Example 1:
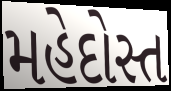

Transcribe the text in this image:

મહેદોસ્ત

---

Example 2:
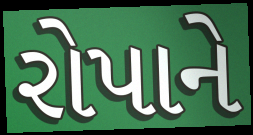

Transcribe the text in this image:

રોપાને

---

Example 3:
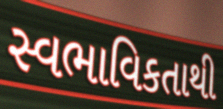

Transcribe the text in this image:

સ્વભાવિકતાથી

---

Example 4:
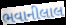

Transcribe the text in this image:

ભવાનીલાલ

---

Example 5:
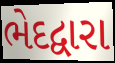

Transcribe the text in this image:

ભેદદ્વારા